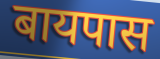
बायपास